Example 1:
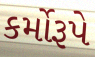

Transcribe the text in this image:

કર્મોરૂપે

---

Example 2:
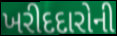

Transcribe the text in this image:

ખરીદદારોની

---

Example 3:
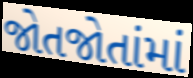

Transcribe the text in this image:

જોતજોતાંમાં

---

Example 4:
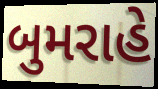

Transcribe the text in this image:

બુમરાહે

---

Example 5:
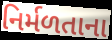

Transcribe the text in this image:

નિર્મળતાના